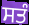
ਸਤੰ